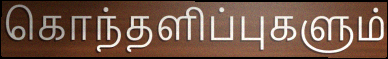
கொந்தளிப்புகளும்